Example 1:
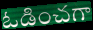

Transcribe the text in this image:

ఓడించగా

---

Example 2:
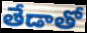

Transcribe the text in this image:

తేడాతో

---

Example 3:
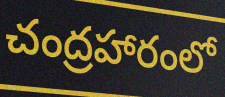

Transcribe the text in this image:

చంద్రహారంలో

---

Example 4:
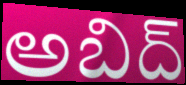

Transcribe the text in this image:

అబిద్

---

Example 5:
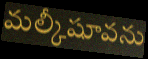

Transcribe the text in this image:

మల్కీషూవను